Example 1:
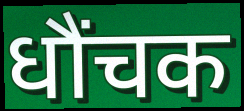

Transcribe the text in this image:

धौंचक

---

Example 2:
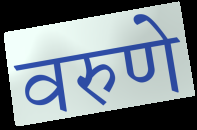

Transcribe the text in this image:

वरुणे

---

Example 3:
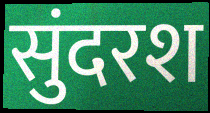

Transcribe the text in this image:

सुंदरश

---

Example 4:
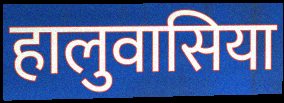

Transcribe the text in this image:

हालुवासिया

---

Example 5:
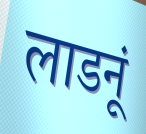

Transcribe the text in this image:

लाडनूं